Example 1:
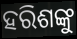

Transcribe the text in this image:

ହରିଶଙ୍କୁ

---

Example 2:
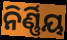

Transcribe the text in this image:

ନିର୍ଣ୍ଣିୟ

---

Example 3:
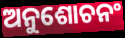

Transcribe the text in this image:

ଅନୁଶୋଚନଂ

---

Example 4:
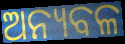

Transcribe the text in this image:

ଅନ୍ୟବଳ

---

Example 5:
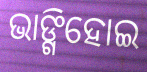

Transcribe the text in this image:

ଭାଙ୍ଗିହୋଇ